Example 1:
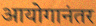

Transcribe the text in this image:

आयोगानंतर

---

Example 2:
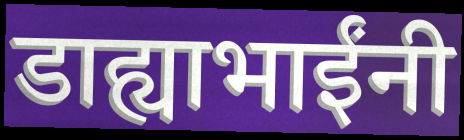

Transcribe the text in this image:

डाह्याभाईंनी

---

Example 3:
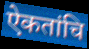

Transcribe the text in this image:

ऐकतांचि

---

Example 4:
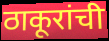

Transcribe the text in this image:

ठाकूरांची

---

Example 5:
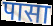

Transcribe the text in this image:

पासा